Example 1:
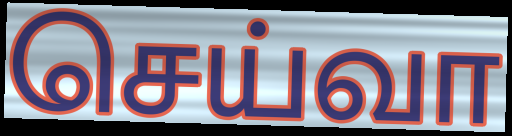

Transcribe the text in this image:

செய்வா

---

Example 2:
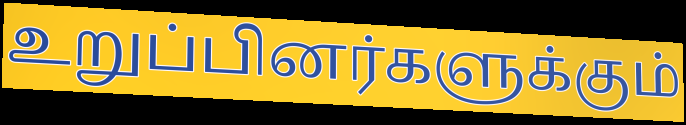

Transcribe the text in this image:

உறுப்பினர்களுக்கும்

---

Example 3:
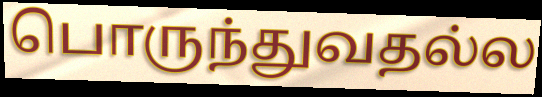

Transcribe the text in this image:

பொருந்துவதல்ல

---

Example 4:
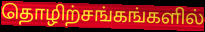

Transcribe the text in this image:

தொழிற்சங்கங்களில்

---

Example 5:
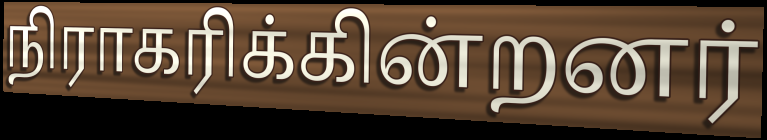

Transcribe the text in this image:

நிராகரிக்கின்றனர்